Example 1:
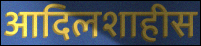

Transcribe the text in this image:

आदिलशाहीस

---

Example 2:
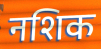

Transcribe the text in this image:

नशिक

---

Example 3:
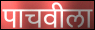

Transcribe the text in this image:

पाचवीला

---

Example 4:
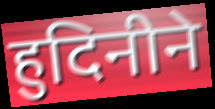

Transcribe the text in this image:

हुदिनीने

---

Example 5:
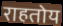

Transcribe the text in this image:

राहतोय